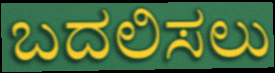
ಬದಲಿಸಲು